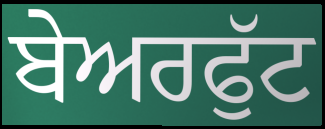
ਬੇਅਰਫੁੱਟ